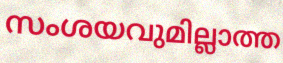
സംശയവുമില്ലാത്ത